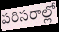
పరిసరాల్లో